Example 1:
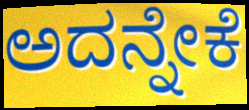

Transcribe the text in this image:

ಅದನ್ನೇಕೆ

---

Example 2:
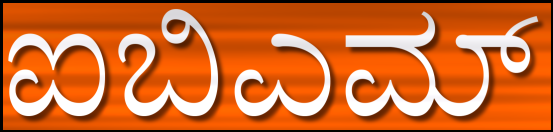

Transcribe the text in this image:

ಐಬಿಎಮ್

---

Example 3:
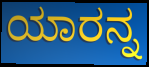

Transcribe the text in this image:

ಯಾರನ್ನ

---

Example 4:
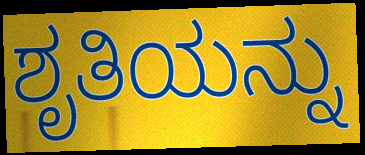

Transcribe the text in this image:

ಶೃತಿಯನ್ನು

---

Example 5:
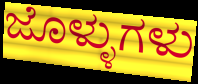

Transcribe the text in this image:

ಜೊಳ್ಳುಗಳು